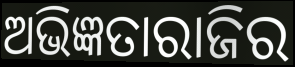
ଅଭିଜ୍ଞତାରାଜିର